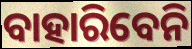
ବାହାରିବେନି